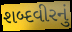
શબ્દવીરનું